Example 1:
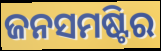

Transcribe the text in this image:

ଜନସମଷ୍ଟିର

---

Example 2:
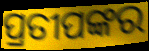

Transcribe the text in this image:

ପ୍ରତୀପଙ୍କର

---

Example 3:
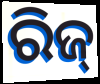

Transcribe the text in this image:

ରିଜ୍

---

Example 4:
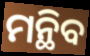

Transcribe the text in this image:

ମନ୍ଥିବ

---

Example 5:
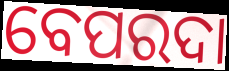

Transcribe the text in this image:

ବେପରଦା